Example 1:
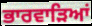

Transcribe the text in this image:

ਭਾਰਵਾੜਿਆਂ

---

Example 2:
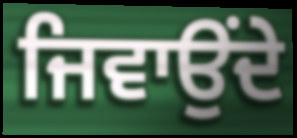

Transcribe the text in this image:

ਜਿਵਾਉਂਦੇ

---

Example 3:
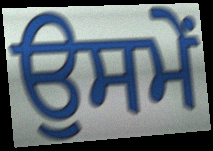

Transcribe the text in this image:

ਉਸਮੇਂ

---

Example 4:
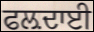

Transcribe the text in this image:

ਫਲ਼ਦਾਈ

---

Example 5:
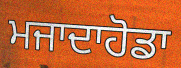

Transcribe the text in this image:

ਮਜਾਦਾਹੋਡਾ